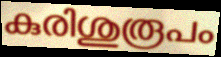
കുരിശുരൂപം